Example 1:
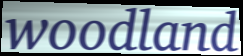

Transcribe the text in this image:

woodland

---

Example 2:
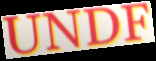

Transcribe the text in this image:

UNDF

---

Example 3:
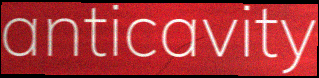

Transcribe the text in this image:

anticavity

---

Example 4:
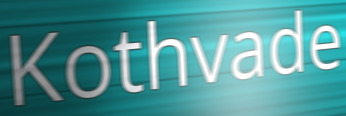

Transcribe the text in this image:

Kothvade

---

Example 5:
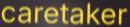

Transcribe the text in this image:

caretaker